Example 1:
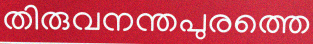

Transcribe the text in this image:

തിരുവനന്തപുരത്തെ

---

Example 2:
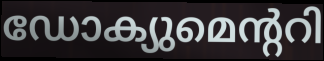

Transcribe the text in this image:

ഡോക്യുമെന്ററി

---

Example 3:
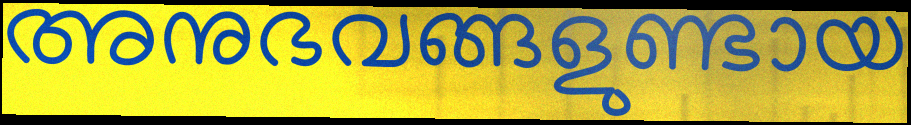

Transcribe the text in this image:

അനുഭവങ്ങളുണ്ടായ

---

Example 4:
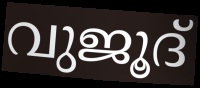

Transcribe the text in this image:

വുജൂദ്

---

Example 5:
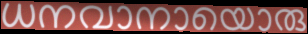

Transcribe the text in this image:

ധനവാനായൊരു